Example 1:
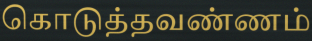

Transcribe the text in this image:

கொடுத்தவண்ணம்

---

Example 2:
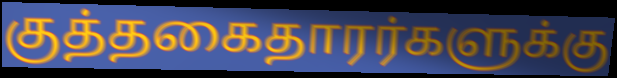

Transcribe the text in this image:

குத்தகைதாரர்களுக்கு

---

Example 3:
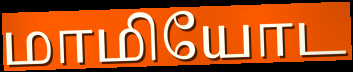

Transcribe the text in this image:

மாமியோட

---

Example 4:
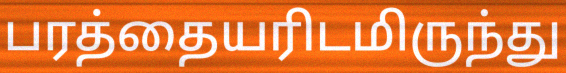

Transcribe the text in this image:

பரத்தையரிடமிருந்து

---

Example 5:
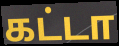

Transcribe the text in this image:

கட்டா